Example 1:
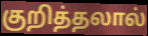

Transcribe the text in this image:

குறித்தலால்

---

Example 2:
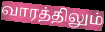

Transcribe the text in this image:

வாரத்திலும்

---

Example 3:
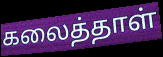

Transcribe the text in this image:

கலைத்தாள்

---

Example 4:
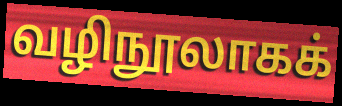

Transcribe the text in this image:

வழிநூலாகக்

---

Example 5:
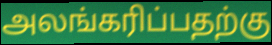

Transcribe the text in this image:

அலங்கரிப்பதற்கு